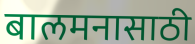
बालमनासाठी